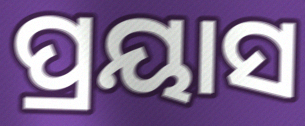
ପ୍ରୟାସ